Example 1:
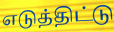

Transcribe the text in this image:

எடுத்திட்டு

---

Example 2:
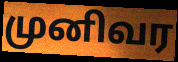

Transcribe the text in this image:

முனிவர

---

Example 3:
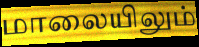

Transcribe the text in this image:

மாலையிலும்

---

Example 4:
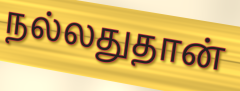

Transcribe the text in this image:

நல்லதுதான்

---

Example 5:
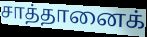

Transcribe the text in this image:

சாத்தானைக்